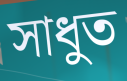
সাধুত